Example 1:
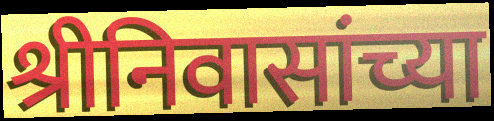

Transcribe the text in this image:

श्रीनिवासांच्या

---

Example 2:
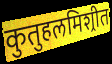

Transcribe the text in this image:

कुतुहलमिश्रीत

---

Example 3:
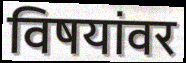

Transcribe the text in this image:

विषयांवर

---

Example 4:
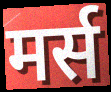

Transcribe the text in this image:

मर्स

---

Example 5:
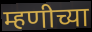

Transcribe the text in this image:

म्हणीच्या